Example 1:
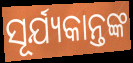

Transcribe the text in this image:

ସୂର୍ଯ୍ୟକାନ୍ତଙ୍କ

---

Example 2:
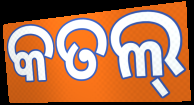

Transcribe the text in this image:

କତଲ୍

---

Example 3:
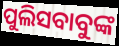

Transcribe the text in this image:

ପୁଲିସବାବୁଙ୍କ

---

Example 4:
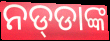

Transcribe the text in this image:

ନଡ୍‌ଡାଙ୍କ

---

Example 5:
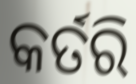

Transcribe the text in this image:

କର୍ତରି